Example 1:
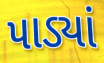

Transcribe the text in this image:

પાડ્યાં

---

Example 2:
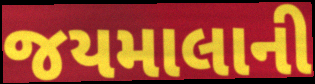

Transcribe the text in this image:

જયમાલાની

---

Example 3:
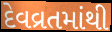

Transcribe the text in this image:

દેવવ્રતમાંથી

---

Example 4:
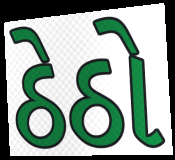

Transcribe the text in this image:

ઠેઠો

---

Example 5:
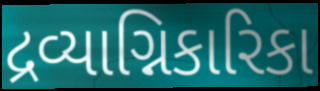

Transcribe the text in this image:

દ્રવ્યાગ્નિકારિકા